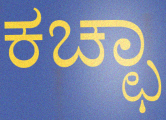
ಕಚ್ಛಾ